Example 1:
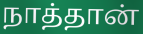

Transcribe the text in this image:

நாத்தான்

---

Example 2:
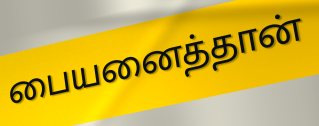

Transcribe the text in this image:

பையனைத்தான்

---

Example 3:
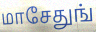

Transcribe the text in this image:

மாசேதுங்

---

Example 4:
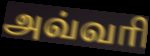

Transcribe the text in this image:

அவ்வரி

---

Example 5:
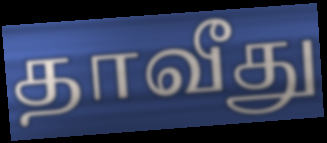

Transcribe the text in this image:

தாவீது